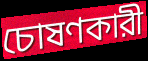
চোষণকারী